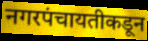
नगरपंचायतीकडून